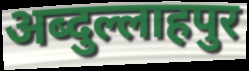
अब्दुल्लाहपुर